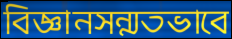
বিজ্ঞানসন্মতভাবে